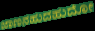
ಜಾಣನಹುದಹುದೋ